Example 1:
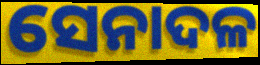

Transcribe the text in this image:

ସେନାଦଳ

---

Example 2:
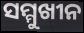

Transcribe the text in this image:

ସମ୍ମୁଖୀନ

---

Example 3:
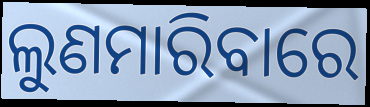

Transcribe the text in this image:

ଲୁଣମାରିବାରେ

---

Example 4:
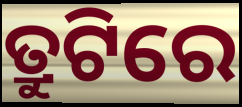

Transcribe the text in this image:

ତ୍ରୁଟିରେ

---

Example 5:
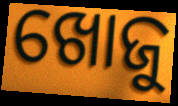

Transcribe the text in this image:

ଖୋଜୁ